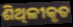
ଶିଥିଳୀକୃତ